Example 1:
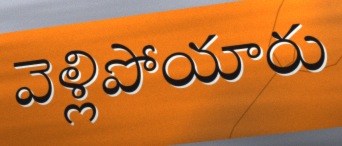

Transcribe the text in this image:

వెళ్లిపోయారు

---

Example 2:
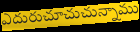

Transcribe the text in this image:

ఎదురుచూచుచున్నాము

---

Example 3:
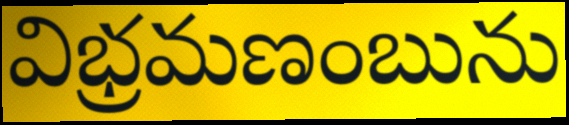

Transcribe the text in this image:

విభ్రమణంబును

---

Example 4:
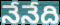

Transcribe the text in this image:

నేనేది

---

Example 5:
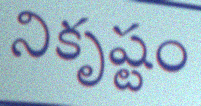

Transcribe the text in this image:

నికృష్టం